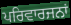
ਪਰਿਵਾਰਜਨਾਂ